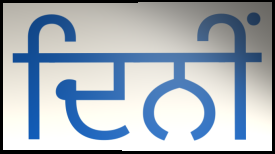
ਦਿਨੀਂ